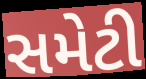
સમેટી